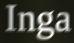
Inga